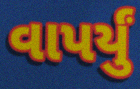
વાપર્યું